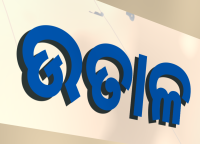
ଉତାଳ